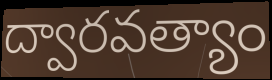
ద్వారవత్యాం